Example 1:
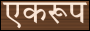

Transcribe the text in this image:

एकरूप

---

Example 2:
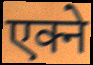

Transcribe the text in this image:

एक्ने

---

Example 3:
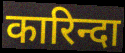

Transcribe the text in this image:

कारिन्दा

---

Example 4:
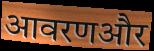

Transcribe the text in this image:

आवरणऔर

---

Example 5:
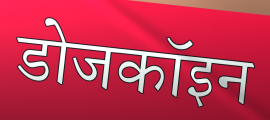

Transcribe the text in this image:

डोजकॉइन